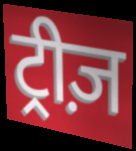
ट्रीज़